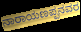
ನಾರಾಯಣಪ್ಪನವರ